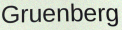
Gruenberg